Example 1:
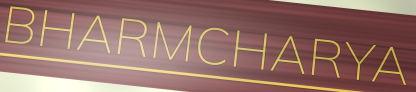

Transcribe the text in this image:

BHARMCHARYA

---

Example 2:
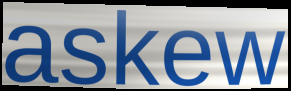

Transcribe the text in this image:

askew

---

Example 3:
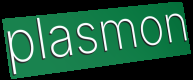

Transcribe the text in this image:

plasmon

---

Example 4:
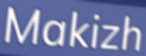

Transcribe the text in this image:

Makizh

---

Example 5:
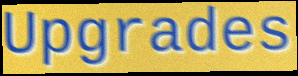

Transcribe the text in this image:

Upgrades